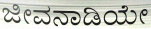
ಜೀವನಾಡಿಯೇ